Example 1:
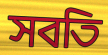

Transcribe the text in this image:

সবতি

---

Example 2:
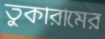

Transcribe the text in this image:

তুকারামের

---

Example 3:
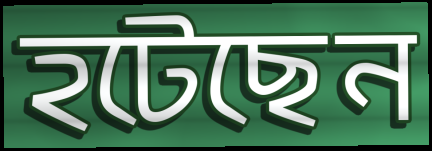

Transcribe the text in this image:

হটেছেন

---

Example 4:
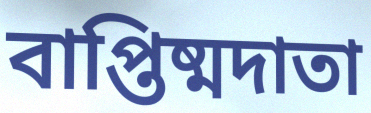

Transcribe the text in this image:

বাপ্তিষ্মদাতা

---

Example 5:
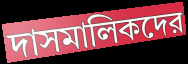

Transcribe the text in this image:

দাসমালিকদের